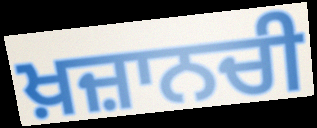
ਖ਼ਜ਼ਾਨਚੀ